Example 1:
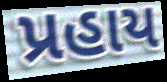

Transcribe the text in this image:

પ્રહાય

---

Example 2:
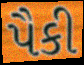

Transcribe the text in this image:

પૈકી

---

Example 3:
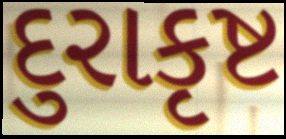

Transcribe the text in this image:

દુરાકૃષ્ટ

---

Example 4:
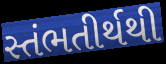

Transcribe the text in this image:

સ્તંભતીર્થથી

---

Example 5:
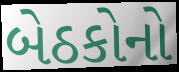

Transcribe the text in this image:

બેઠકોનો